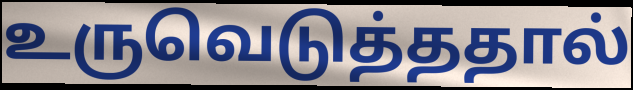
உருவெடுத்ததால்